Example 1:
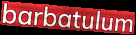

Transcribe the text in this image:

barbatulum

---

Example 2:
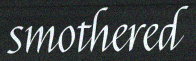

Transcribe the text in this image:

smothered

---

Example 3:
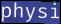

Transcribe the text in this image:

physi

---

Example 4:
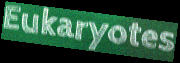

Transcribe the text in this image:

Eukaryotes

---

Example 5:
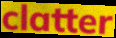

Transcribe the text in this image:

clatter